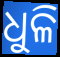
ଧୁଳି